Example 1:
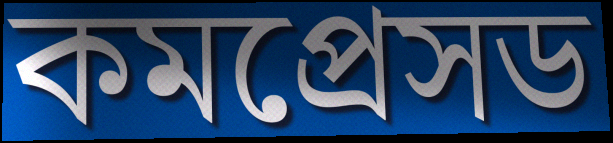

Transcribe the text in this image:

কমপ্রেসড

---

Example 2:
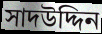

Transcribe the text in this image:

সাদউদ্দিন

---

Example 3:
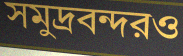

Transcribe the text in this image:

সমুদ্রবন্দরও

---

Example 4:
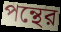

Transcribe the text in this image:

পন্থের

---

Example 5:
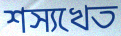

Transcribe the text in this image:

শস্যখেত